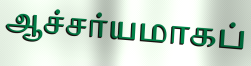
ஆச்சர்யமாகப்